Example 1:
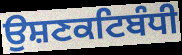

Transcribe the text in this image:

ਉਸ਼ਣਕਟਿਬੰਧੀ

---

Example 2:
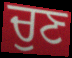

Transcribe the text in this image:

ਚੁਣ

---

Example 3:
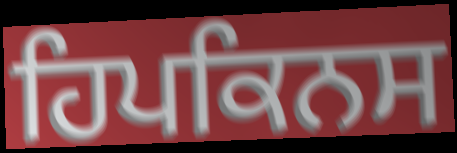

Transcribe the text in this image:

ਹਿਪਕਿਨਸ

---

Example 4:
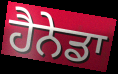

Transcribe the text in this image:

ਹੈਨੇਡਾ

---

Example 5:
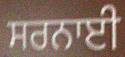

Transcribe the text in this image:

ਸਰਨਾਈ